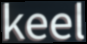
keel